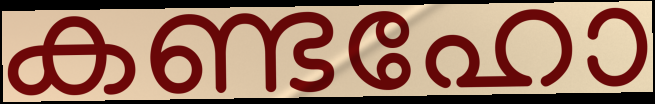
കണ്ടഹോ